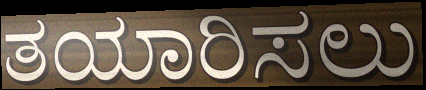
ತಯಾರಿಸಲು